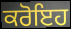
ਕਰੋਇਹ